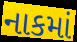
નાકમાં